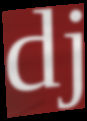
dj